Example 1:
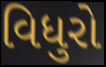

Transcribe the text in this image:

વિધુરો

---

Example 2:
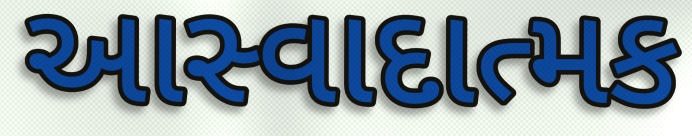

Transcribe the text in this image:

આસ્વાદાત્મક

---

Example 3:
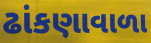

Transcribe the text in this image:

ઢાંકણાવાળા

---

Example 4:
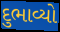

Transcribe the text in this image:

દુભાવ્યો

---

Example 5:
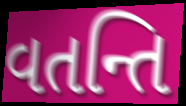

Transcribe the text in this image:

વતન્તિ